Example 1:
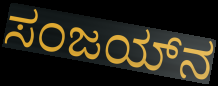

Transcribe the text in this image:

ಸಂಜಯ್‌ನ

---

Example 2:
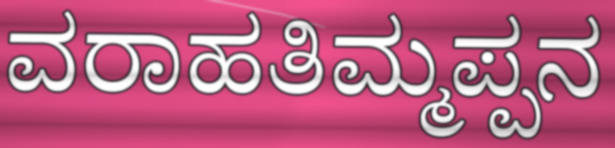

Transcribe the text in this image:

ವರಾಹತಿಮ್ಮಪ್ಪನ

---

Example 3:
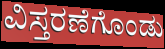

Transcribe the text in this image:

ವಿಸ್ತರಣೆಗೊಂಡು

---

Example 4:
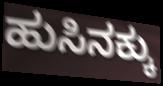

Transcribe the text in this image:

ಹುಸಿನಕ್ಕು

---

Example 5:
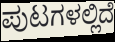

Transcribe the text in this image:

ಪುಟಗಳಲ್ಲಿದೆ